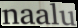
naalu